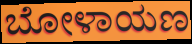
ಬೋಳಾಯಣ